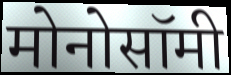
मोनोसॉमी